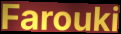
Farouki